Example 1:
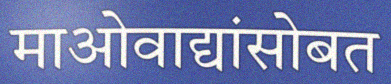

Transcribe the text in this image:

माओवाद्यांसोबत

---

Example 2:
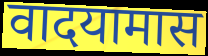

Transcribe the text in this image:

वादयामास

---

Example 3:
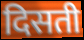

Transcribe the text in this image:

दिसती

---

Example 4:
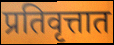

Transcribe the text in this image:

प्रतिवृत्तात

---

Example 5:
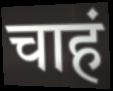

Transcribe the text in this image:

चाहं